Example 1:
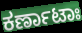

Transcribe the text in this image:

ಕರ್ಣಾಟಾಃ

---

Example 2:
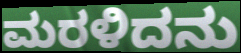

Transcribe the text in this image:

ಮರಳಿದನು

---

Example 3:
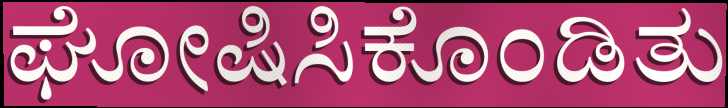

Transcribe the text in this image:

ಘೋಷಿಸಿಕೊಂಡಿತು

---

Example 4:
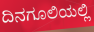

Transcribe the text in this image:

ದಿನಗೂಲಿಯಲ್ಲಿ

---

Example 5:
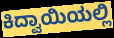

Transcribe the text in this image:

ಕಿದ್ವಾಯಿಯಲ್ಲಿ